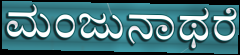
ಮಂಜುನಾಥರೆ